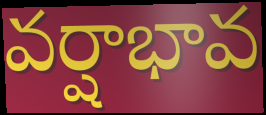
వర్షాభావ